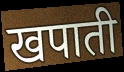
खपाती